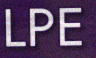
LPE